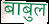
बाबुल